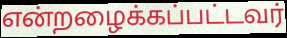
என்றழைக்கப்பட்டவர்